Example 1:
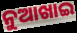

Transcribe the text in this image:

ନୁଆଖାଇ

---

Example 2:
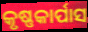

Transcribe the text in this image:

କୃଷ୍ଣକାର୍ପାସ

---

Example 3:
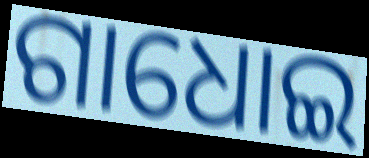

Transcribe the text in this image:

ଗାଧୋଇ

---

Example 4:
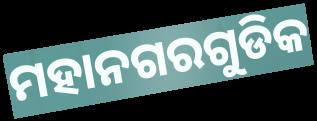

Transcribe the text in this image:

ମହାନଗରଗୁଡିକ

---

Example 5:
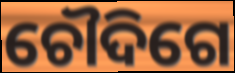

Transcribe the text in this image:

ଚୌଦିଗେ